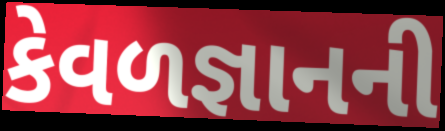
કેવળજ્ઞાનની